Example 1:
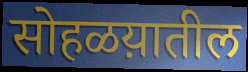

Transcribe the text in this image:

सोहळय़ातील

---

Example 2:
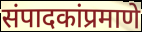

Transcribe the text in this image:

संपादकांप्रमाणे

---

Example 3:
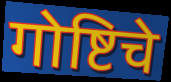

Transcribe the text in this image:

गोष्टिचे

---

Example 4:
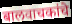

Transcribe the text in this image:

बालवाचकांचे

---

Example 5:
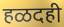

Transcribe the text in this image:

हळदही